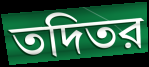
তদিতর